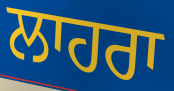
ਲਾਹਰਾ